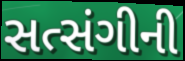
સત્સંગીની